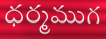
ధర్మముగ